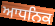
ਆਧਨਿਕ